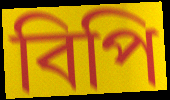
বিপি